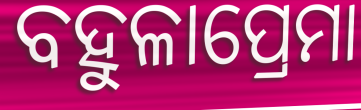
ବହୁଳାପ୍ରେମା